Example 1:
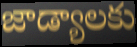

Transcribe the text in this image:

జాడ్యాలకు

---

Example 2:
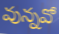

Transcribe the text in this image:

వున్నవో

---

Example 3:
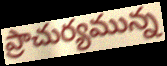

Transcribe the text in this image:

ప్రాచుర్యమున్న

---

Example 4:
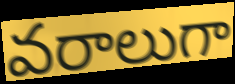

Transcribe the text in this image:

వరాలుగా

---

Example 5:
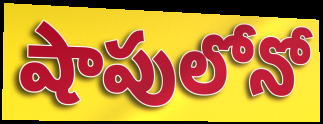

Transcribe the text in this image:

షాపులోనో